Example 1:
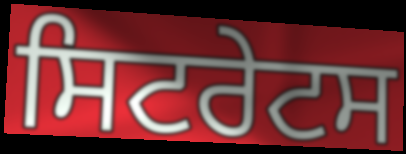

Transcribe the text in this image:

ਸਿਟਰੇਟਸ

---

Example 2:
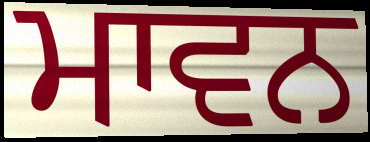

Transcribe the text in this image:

ਮਾਵਨ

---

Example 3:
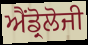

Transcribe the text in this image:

ਐਂਡ੍ਰੋਲੋਜੀ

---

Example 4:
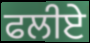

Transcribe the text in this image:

ਫਲੀਏ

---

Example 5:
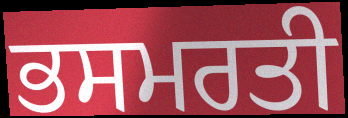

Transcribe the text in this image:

ਭਸਮਰਤੀ